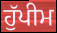
ਹੁੱਪੀਮ